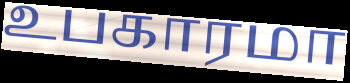
உபகாரமா